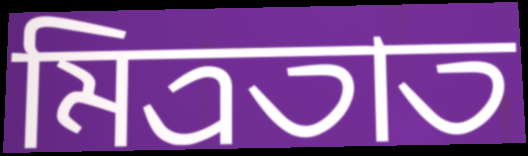
মিত্ৰতাত